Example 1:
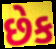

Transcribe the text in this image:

છેક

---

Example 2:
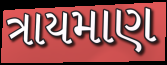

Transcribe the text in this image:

ત્રાયમાણ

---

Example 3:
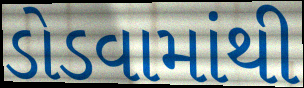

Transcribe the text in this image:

ડોડવામાંથી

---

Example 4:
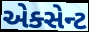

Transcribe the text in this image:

એક્સેન્ટ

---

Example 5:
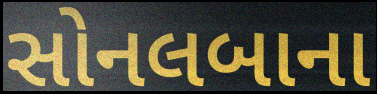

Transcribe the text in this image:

સોનલબાના